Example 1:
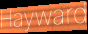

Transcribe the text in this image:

Hayward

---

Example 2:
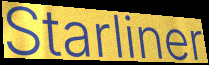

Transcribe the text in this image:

Starliner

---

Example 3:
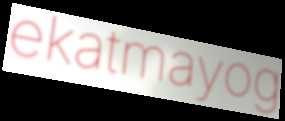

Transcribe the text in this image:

ekatmayog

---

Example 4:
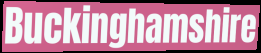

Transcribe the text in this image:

Buckinghamshire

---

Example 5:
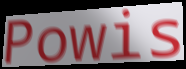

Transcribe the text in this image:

Powis